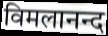
विमलानन्द